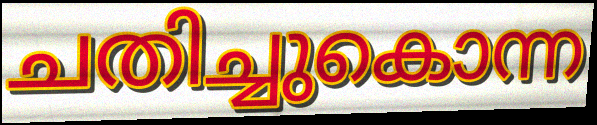
ചതിച്ചുകൊന്ന